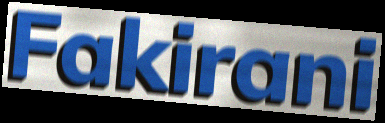
Fakirani